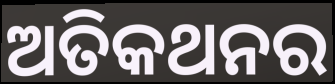
ଅତିକଥନର